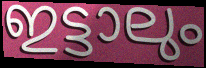
ഇട്ടാലും